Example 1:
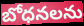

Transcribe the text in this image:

బోధనలను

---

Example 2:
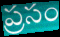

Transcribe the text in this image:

ప్రసం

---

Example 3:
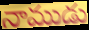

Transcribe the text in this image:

నాముడు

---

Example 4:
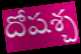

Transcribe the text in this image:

దోషశ్చ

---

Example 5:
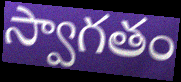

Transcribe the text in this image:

స్వాగతం